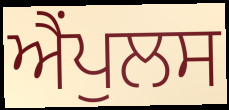
ਐਂਪੁਲਸ